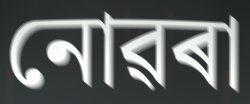
নোৱৰা